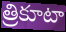
త్రికూటా